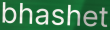
bhashet